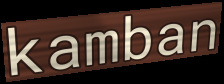
kamban